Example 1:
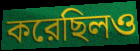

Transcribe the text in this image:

করেছিলও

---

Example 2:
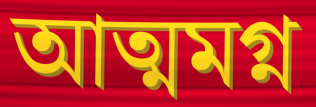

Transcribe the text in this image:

আত্মমগ্ন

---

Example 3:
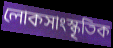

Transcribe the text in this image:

লোকসাংস্কৃতিক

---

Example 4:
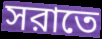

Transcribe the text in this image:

সরাতে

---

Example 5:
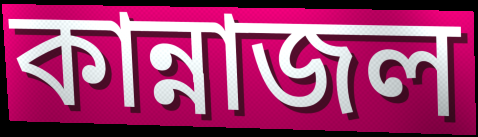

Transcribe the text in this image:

কান্নাজল